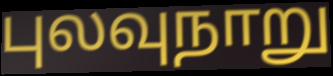
புலவுநாறு